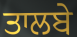
ਤਾਲਬੇ